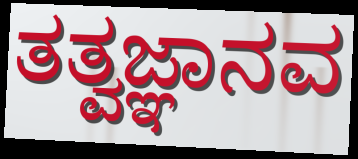
ತತ್ವಜ್ಞಾನವ